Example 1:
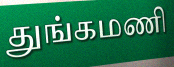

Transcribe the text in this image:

துங்கமணி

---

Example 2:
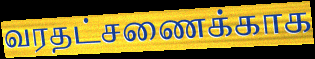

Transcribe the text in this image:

வரதட்சணைக்காக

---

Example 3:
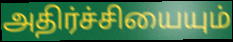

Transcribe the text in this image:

அதிர்ச்சியையும்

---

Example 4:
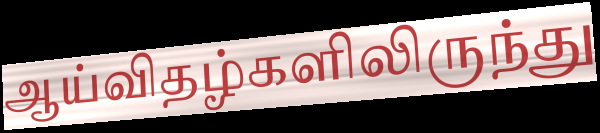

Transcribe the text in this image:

ஆய்விதழ்களிலிருந்து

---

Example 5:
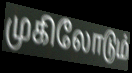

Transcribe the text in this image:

முகிலோடும்